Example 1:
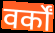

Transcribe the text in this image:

वर्कों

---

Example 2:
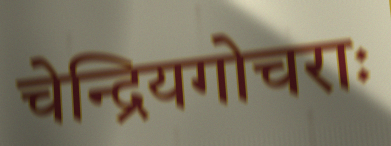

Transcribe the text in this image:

चेन्द्रियगोचराः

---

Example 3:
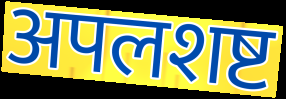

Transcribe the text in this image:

अपलशष्ट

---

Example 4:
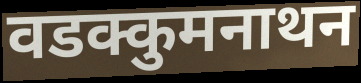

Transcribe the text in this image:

वडक्कुमनाथन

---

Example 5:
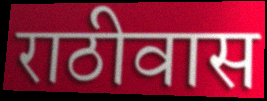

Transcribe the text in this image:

राठीवास